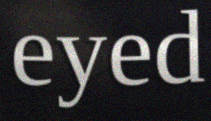
eyed